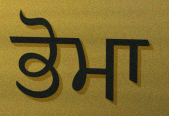
ਭੋਮਾ